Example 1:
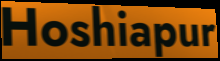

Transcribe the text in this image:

Hoshiapur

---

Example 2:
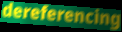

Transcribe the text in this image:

dereferencing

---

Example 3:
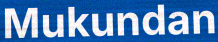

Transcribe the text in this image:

Mukundan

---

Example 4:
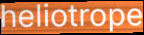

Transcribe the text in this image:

heliotrope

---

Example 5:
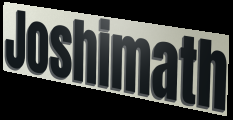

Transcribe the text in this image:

Joshimath